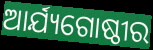
ଆର୍ଯ୍ୟଗୋଷ୍ଠୀର